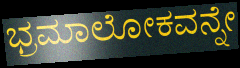
ಭ್ರಮಾಲೋಕವನ್ನೇ